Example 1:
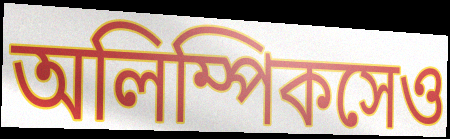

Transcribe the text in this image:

অলিম্পিকসেও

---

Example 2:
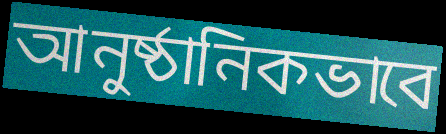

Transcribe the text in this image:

আনুষ্ঠানিকভাবে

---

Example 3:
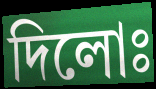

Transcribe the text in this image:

দিলোঃ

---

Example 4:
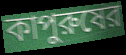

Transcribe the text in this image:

কাপুরুষের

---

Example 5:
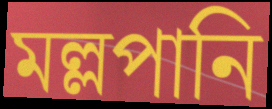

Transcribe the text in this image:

মল্লপানি